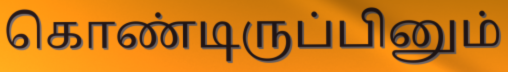
கொண்டிருப்பினும்